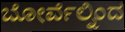
ಬೋರ್ವೆಲ್ನಿಂದ